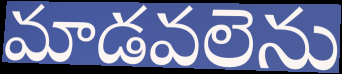
మాడవలెను